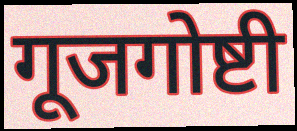
गूजगोष्टी